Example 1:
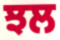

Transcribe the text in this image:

ਝਲ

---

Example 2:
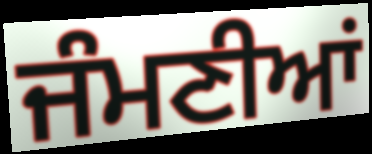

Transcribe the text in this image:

ਜੰਮਣੀਆਂ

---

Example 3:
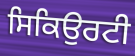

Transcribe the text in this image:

ਸਿਕਿਉਰਟੀ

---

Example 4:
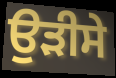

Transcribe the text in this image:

ਉੜੀਸੇ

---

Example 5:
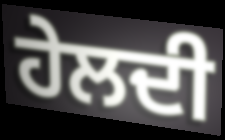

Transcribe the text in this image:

ਹੇਲਦੀ